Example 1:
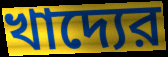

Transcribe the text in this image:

খাদ্যের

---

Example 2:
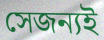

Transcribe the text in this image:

সেজন্যই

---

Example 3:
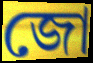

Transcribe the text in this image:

জো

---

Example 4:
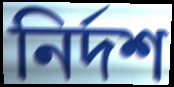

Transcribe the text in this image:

নির্দশ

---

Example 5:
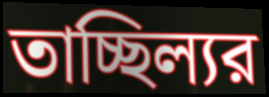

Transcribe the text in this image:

তাচ্ছিল্যর